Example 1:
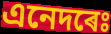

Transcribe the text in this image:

এনেদৰেঃ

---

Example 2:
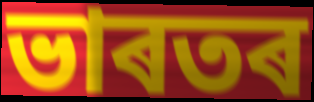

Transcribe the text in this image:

ভাৰতৰ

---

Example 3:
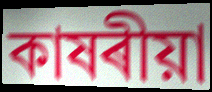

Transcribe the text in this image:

কাষৰীয়া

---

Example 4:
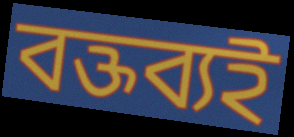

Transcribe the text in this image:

বক্তব্যই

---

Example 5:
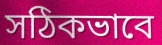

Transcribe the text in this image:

সঠিকভাবে